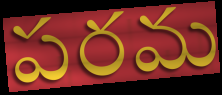
పరమ